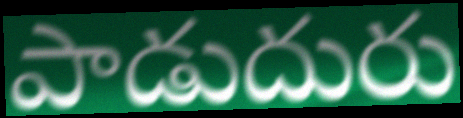
పాడుదురు